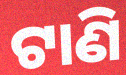
ଟାଣି